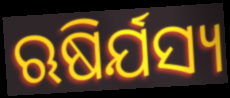
ଋଷିର୍ଯସ୍ୟ